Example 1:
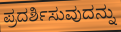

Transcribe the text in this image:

ಪ್ರದರ್ಶಿಸುವುದನ್ನು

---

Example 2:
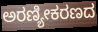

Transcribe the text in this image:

ಅರಣ್ಯೀಕರಣದ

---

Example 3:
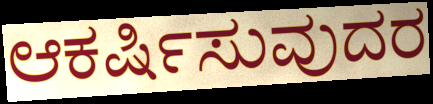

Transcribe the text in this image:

ಆಕರ್ಷಿಸುವುದರ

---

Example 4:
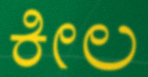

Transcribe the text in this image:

ಕೀಲ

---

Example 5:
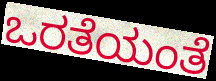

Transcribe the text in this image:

ಒರತೆಯಂತೆ